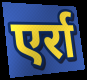
एर्रा